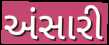
અંસારી